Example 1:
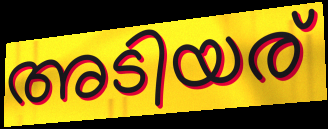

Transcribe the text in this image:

അടിയര്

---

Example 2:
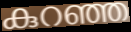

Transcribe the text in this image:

കുറഞ്ഞ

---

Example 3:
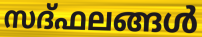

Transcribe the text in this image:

സദ്ഫലങ്ങൾ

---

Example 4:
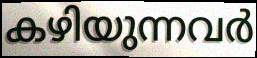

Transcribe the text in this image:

കഴിയുന്നവർ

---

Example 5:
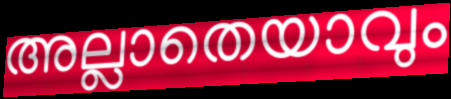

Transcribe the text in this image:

അല്ലാതെയാവും